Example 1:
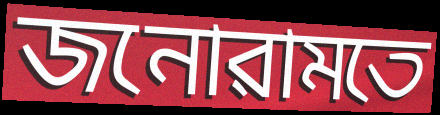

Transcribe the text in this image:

জনোৱামতে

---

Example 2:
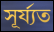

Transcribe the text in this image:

সূৰ্য্যত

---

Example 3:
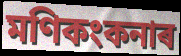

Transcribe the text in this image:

মণিকংকনাৰ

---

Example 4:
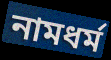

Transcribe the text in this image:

নামধৰ্ম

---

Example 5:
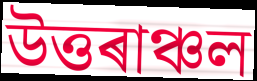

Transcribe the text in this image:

উত্তৰাঞ্চল